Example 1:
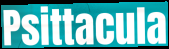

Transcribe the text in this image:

Psittacula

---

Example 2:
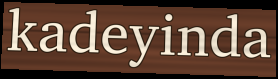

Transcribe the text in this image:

kadeyinda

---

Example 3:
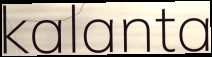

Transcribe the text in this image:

kalanta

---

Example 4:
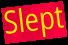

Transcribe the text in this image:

Slept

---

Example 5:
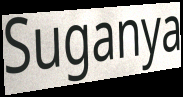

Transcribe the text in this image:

Suganya